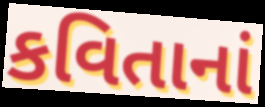
કવિતાનાં